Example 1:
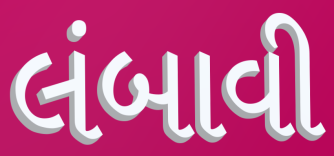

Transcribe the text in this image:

લંબાવી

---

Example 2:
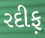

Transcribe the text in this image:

રદીફ઼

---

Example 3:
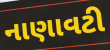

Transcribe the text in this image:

નાણાવટી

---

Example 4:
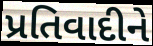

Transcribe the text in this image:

પ્રતિવાદીને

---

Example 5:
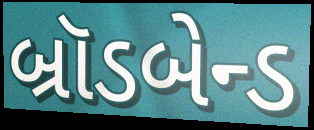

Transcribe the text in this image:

બ્રૉડબેન્ડ